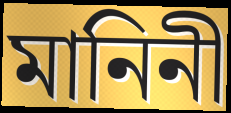
মানিনী